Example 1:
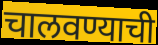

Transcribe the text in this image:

चालवण्याची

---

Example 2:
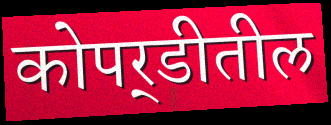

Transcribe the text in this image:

कोपर्डीतील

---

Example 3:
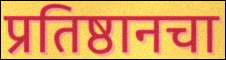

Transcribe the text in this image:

प्रतिष्ठानचा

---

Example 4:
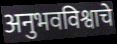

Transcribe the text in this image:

अनुभवविश्वाचे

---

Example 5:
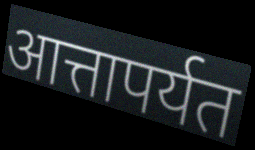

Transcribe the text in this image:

आत्तापर्यत